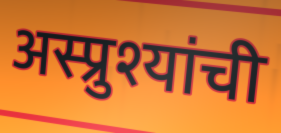
अस्प्रुश्यांची